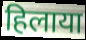
हिलाया